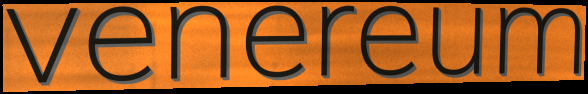
venereum